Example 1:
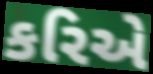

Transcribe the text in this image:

કરિએ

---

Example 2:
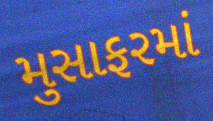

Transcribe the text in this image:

મુસાફરમાં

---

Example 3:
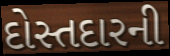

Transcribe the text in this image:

દોસ્તદારની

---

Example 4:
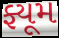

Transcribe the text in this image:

ફ્યૂમ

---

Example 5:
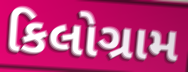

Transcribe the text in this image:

કિલોગ્રામ